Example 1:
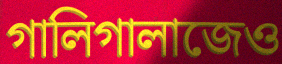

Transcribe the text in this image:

গালিগালাজেও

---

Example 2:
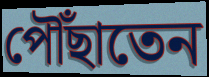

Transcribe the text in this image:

পৌঁছাতেন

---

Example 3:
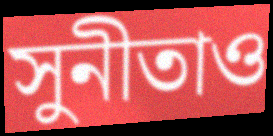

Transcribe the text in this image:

সুনীতাও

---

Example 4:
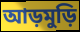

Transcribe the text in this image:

আড়মুড়ি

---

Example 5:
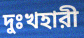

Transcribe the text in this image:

দুঃখহারী